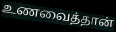
உணவைத்தான்